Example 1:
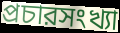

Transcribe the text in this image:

প্রচারসংখ্যা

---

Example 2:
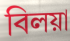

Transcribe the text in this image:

বিলয়া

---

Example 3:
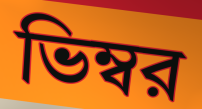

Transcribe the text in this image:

ভিম্বর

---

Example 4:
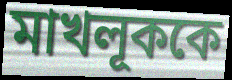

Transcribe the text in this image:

মাখলূককে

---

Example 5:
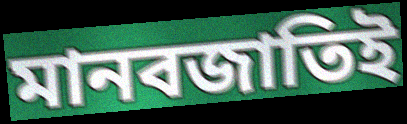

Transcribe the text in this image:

মানবজাতিই